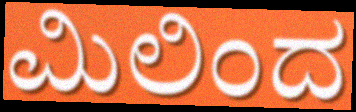
ಮಿಲಿಂದ